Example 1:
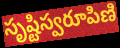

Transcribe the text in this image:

సృష్టిస్వరూపిణి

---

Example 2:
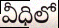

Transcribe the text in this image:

వీధిలో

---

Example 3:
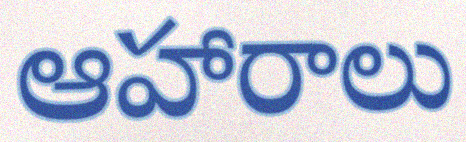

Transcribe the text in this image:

ఆహారాలు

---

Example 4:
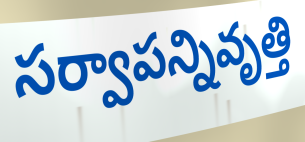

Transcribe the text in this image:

సర్వాపన్నివృత్తి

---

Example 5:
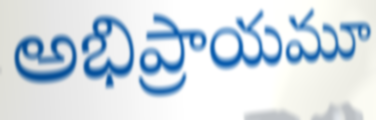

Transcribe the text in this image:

అభిప్రాయమూ